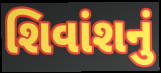
શિવાંશનું